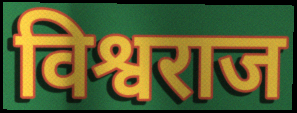
विश्वराज